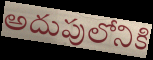
అదుపులోనికి